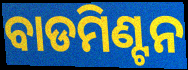
ବାଡମିଣ୍ଟନ